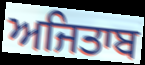
ਅਜਿਤਾਬ